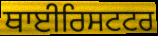
ਥਾਈਰਿਸਟਟਰ